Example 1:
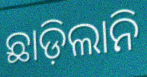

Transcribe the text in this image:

ଛାଡ଼ିଲାନି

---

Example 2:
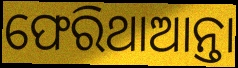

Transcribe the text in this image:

ଫେରିଥାଆନ୍ତା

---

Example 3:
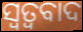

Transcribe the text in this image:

ସ୍ୱତ୍ୱବାଦ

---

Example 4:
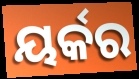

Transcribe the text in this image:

ୟର୍କର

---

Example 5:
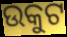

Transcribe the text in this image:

ଉକୁଟ